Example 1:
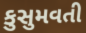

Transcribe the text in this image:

કુસુમવતી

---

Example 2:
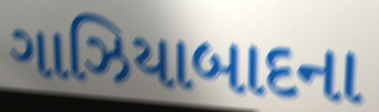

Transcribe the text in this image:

ગાઝિયાબાદના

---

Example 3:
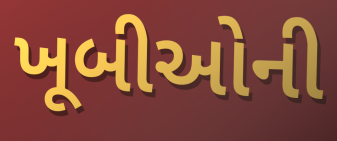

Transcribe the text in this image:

ખૂબીઓની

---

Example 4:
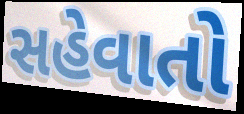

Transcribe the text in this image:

સહેવાતો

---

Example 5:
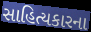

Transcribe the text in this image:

સાહિત્યકારના